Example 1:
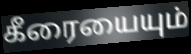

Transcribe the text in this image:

கீரையையும்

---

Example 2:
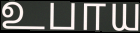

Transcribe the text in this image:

உபாய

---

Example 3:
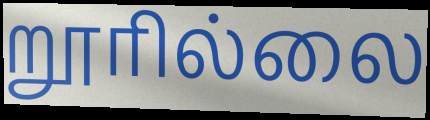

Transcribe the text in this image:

றூரில்லை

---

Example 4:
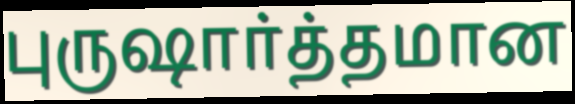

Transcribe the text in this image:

புருஷார்த்தமான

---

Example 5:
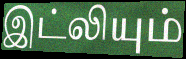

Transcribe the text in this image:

இட்லியும்